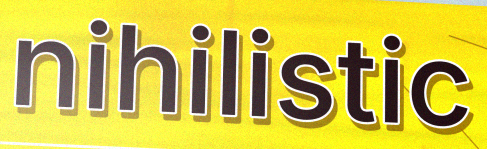
nihilistic